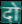
दो